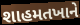
શાહમતખાને